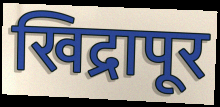
खिद्रापूर